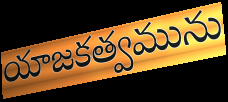
యాజకత్వమును